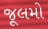
જૂલમો